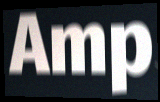
Amp